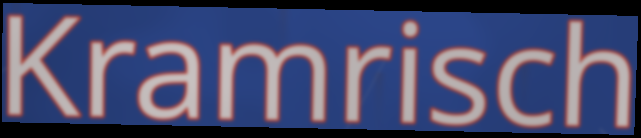
Kramrisch